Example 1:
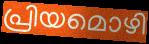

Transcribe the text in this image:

പ്രിയമൊഴി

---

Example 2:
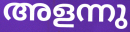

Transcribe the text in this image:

അളന്നു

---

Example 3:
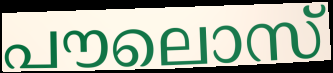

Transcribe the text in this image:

പൗലൊസ്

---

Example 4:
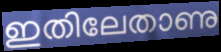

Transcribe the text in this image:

ഇതിലേതാണു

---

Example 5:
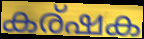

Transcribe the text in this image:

കര്ഷക